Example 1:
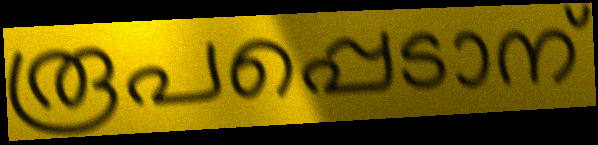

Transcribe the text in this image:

രൂപപ്പെടാന്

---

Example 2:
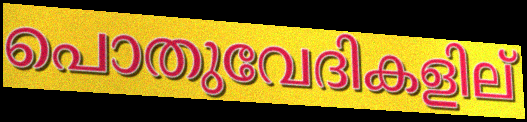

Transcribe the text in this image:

പൊതുവേദികളില്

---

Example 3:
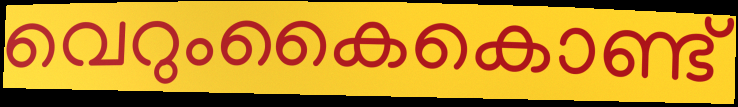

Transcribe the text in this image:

വെറുംകൈകൊണ്ട്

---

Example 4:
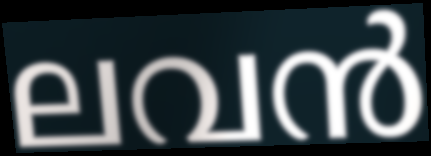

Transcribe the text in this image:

ലവൻ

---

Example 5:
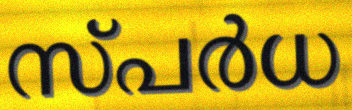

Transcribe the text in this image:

സ്പർധ